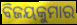
ବିଜୟକୁମାର